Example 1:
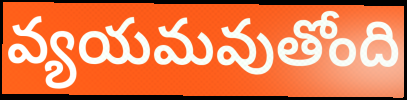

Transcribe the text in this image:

వ్యయమవుతోంది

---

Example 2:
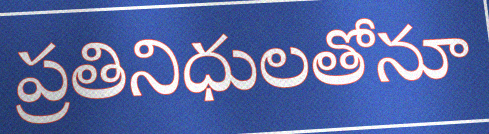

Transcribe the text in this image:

ప్రతినిధులతోనూ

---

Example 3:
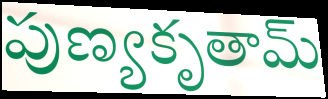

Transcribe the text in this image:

పుణ్యకృతామ్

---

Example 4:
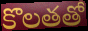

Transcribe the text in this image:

కొలతతో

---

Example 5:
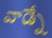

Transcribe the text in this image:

వాడ్నే